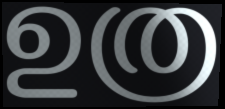
ഉത്ര